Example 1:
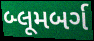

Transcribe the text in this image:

બ્લૂમબર્ગ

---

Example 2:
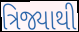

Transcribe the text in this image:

ત્રિજ્યાથી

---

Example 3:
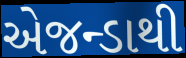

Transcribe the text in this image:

એજન્ડાથી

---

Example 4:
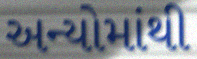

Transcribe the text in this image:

અન્યોમાંથી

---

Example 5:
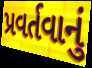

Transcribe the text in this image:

પ્રવર્તવાનું